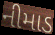
નીમાડ